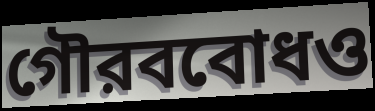
গৌরববোধও